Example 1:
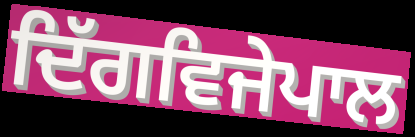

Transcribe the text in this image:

ਦਿੱਗਵਿਜੇਪਾਲ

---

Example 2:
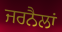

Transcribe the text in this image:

ਜਰਨੈਲਾਂ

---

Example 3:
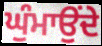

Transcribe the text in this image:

ਘੁੰਮਾਉਂਦੇ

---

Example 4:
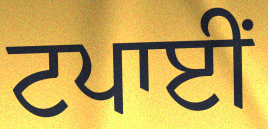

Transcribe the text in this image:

ਟਪਾਈਂ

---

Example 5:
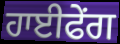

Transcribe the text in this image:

ਹਾਈਫੇਂਗ